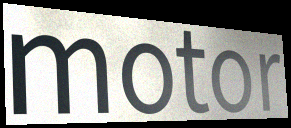
motor